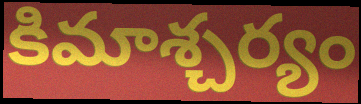
కిమాశ్చర్యం